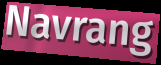
Navrang